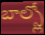
బాల్స్లో